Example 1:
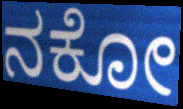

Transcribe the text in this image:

ನಕೋ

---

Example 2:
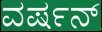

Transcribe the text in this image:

ವರ್ಷನ್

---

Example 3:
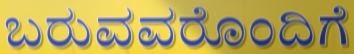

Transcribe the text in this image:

ಬರುವವರೊಂದಿಗೆ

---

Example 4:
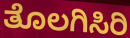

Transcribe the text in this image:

ತೊಲಗಿಸಿರಿ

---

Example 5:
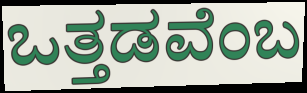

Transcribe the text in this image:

ಒತ್ತಡವೆಂಬ